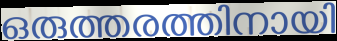
ഒരുത്തരത്തിനായി